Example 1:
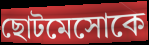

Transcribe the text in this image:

ছোটমেসোকে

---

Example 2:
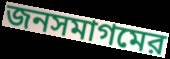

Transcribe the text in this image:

জনসমাগমের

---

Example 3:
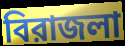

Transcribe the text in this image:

বিরাজলা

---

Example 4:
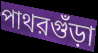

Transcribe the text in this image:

পাথরগুঁড়া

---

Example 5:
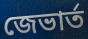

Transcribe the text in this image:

জেভার্ত